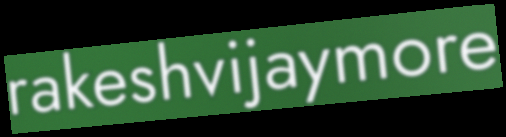
rakeshvijaymore